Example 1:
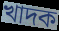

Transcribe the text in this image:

খাদক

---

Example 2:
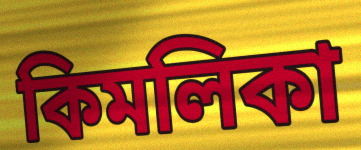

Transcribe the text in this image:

কিমলিকা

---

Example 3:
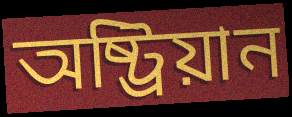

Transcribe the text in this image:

অষ্ট্ৰিয়ান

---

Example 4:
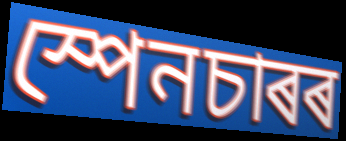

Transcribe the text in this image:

স্পেনচাৰৰ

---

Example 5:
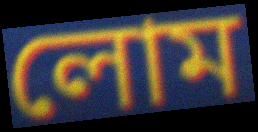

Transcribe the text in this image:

লোম